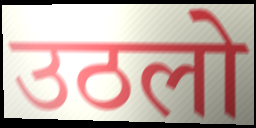
उठलो